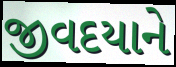
જીવદયાને